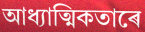
আধ্যাত্মিকতাৰে